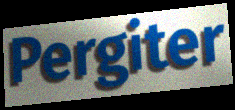
Pergiter